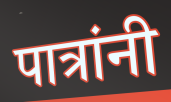
पात्रांनी